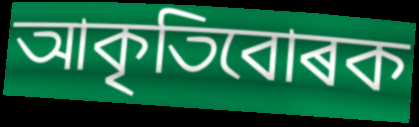
আকৃতিবোৰক